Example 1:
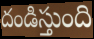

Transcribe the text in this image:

దండిస్తుంది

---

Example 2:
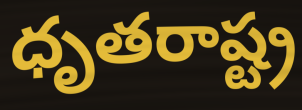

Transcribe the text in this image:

ధృతరాష్ట్ర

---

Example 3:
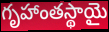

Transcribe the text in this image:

గృహాంతస్థాయై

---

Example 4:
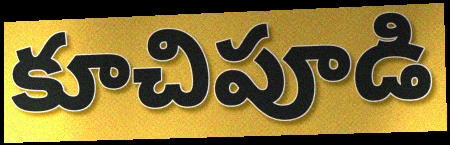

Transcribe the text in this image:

కూచిపూడి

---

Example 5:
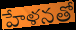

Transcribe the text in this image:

హేళనతో